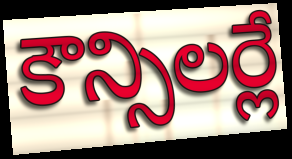
కౌన్సిలర్లే